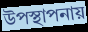
উপস্থাপনায়